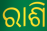
ରାଶି